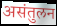
असंतुलन